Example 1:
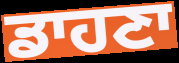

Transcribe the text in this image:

ਡਾਹਣਾ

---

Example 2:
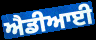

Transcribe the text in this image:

ਐਡੀਆਈ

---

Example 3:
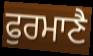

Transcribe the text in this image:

ਫੁਰਮਾਣੈ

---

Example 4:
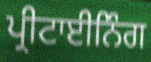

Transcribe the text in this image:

ਪ੍ਰੀਟਾਈਨਿੰਗ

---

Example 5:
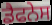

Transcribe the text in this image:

ਡੈਫਨੇਸ